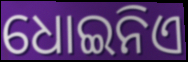
ଧୋଇନିଏ